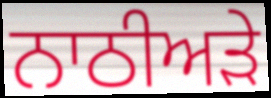
ਨਾਠੀਅੜੇ